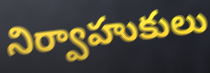
నిర్వాహుకులు